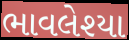
ભાવલેશ્યા